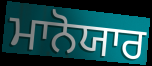
ਮਾਨੋਯਾਰ